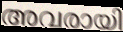
അവരായി